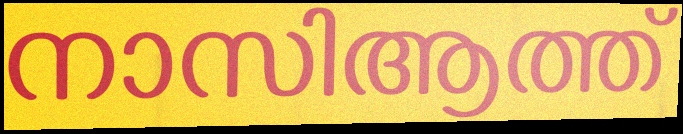
നാസിആത്ത്